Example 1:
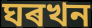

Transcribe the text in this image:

ঘৰখন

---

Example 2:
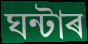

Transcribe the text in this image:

ঘন্টাৰ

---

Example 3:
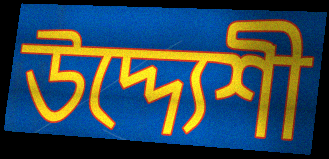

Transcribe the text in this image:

উদ্দ্যেশী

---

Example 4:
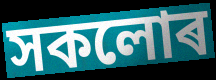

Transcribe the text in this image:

সকলোৰ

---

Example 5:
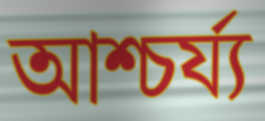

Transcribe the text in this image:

আশ্চৰ্য্য